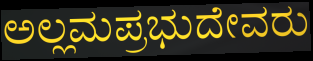
ಅಲ್ಲಮಪ್ರಭುದೇವರು